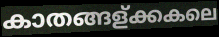
കാതങ്ങള്ക്കകലെ